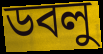
ডবলু